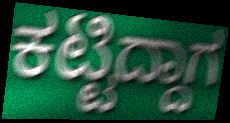
ಕಟ್ಟಿದ್ದಾಗ